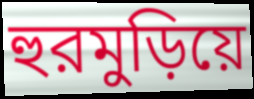
হুরমুড়িয়ে